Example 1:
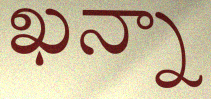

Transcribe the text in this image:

ఖన్నా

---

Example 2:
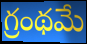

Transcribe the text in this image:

గ్రంథమే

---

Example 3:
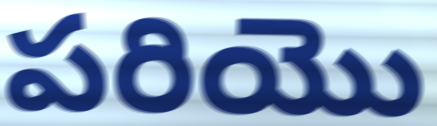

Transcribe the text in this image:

పరియొ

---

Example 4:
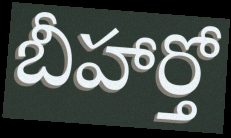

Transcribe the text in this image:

బీహార్తో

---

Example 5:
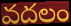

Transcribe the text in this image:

వదలం